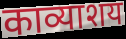
काव्याशय